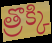
త్రొక్కి